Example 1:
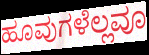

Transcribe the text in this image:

ಹೂವುಗಳೆಲ್ಲವೂ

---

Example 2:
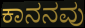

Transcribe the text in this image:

ಕಾನನವು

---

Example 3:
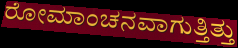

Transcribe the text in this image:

ರೋಮಾಂಚನವಾಗುತ್ತಿತ್ತು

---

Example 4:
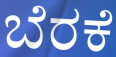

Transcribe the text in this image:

ಬೆರಕೆ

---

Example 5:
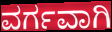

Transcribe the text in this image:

ವರ್ಗವಾಗಿ